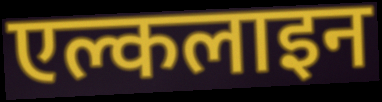
एल्कलाइन